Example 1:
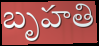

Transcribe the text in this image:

బృహతి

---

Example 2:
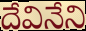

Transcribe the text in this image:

దేవినేని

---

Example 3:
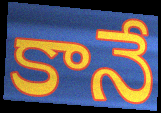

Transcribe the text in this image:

కానే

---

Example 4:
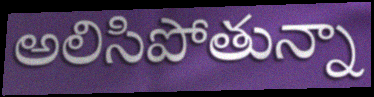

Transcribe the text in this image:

అలిసిపోతున్నా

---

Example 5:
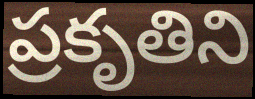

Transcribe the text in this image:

ప్రకృతిని